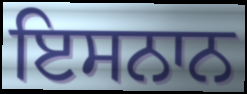
ਇਸਨਾਨ